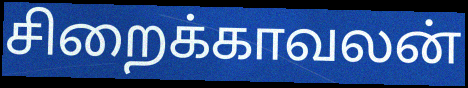
சிறைக்காவலன்